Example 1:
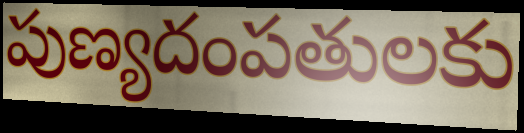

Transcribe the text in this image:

పుణ్యదంపతులకు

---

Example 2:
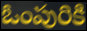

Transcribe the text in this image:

ఓంపురికి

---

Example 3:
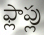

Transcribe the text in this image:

ఫ్లాప్లు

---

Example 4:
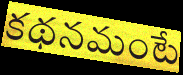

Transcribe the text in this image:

కథనమంటే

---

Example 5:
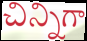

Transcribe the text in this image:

చిన్నిగా